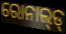
ରୋନାଲ୍‌ଡ୍